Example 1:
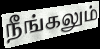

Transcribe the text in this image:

நீங்கலும்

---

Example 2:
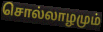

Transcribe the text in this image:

சொல்லாழமும்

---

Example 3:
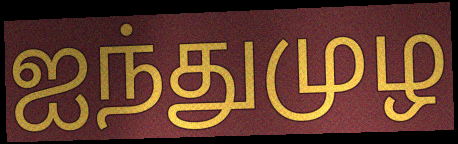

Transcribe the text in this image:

ஐந்துமுழ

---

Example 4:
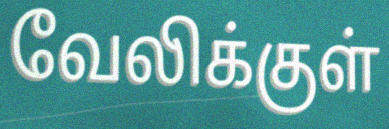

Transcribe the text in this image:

வேலிக்குள்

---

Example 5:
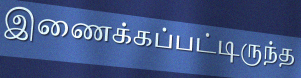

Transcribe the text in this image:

இணைக்கப்பட்டிருந்த